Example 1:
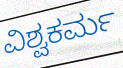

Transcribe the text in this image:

ವಿಶ್ವಕರ್ಮ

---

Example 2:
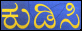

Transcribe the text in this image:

ಕುಡಿಸಿ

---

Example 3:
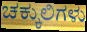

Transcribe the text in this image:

ಚಕ್ಕುಲಿಗಳು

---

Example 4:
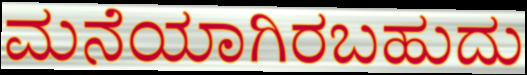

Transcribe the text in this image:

ಮನೆಯಾಗಿರಬಹುದು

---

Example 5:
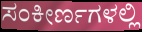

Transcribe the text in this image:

ಸಂಕೀರ್ಣಗಳಲ್ಲಿ